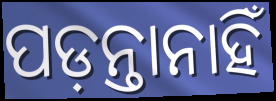
ପଡ଼ନ୍ତାନାହିଁ